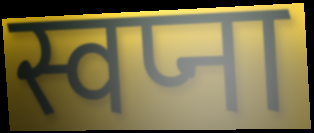
स्‍वप्‍ना